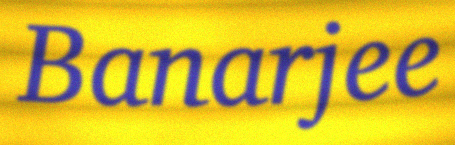
Banarjee